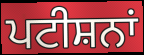
ਪਟੀਸ਼ਨਾਂ